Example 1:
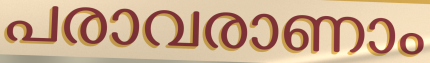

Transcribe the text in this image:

പരാവരാണാം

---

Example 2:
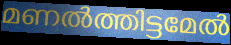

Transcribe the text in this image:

മണൽത്തിട്ടമേൽ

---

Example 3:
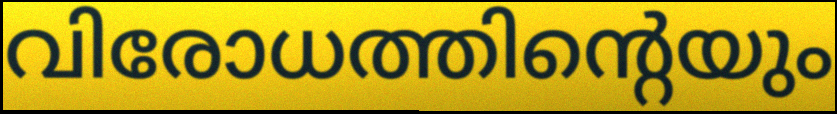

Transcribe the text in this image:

വിരോധത്തിന്റെയും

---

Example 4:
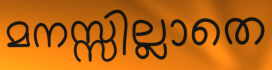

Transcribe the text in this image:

മനസ്സില്ലാതെ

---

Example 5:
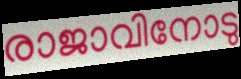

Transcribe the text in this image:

രാജാവിനോടു